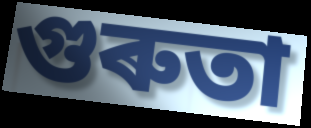
গুৰুতা